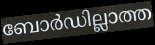
ബോർഡില്ലാത്ത